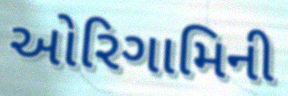
ઓરિગામિની